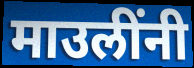
माउलींनी